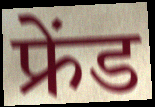
फ्रेंड